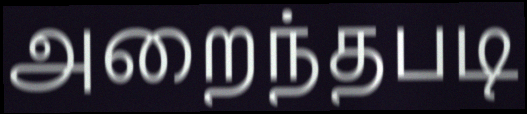
அறைந்தபடி